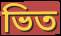
ভিত